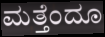
ಮತ್ತೆಂದೂ